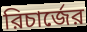
রিচার্জের